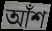
আঁশ